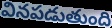
వినపడుతుంది